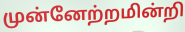
முன்னேற்றமின்றி